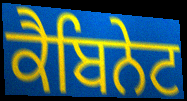
ਕੈਬਿਨੇਟ